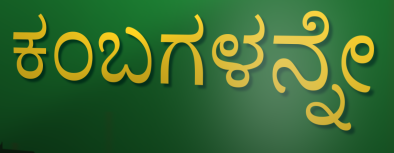
ಕಂಬಗಳನ್ನೇ